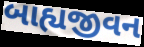
બાહ્યજીવન